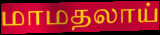
மாமதலாய்